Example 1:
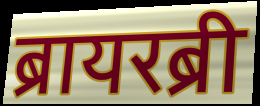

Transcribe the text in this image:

ब्रायरब्री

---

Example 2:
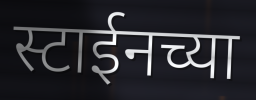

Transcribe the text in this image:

स्टाईनच्या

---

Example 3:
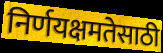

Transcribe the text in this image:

निर्णयक्षमतेसाठी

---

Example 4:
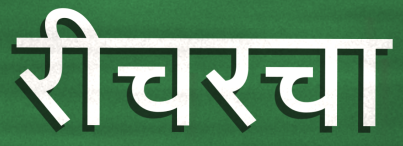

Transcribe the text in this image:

रीचरचा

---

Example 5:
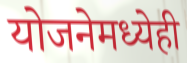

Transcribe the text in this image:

योजनेमध्येही